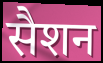
सैशन